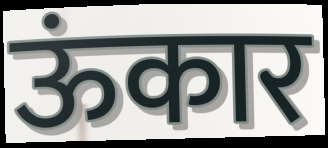
ऊंकार